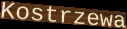
Kostrzewa